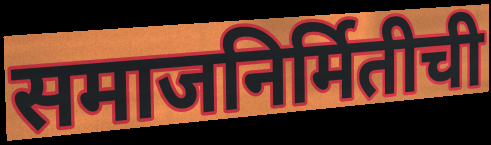
समाजनिर्मितीची